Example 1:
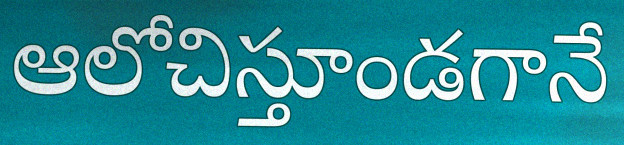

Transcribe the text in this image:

ఆలోచిస్తూండగానే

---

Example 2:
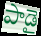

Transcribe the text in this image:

పాడై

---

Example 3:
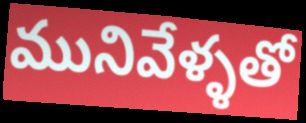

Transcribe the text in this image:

మునివేళ్ళతో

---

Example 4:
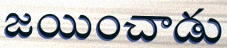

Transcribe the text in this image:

జయించాడు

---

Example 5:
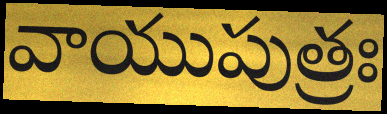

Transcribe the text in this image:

వాయుపుత్రః